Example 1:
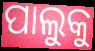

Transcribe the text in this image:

ପାଲୁକୁ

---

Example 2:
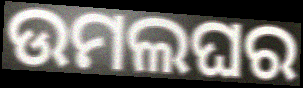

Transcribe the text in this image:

ଉମଲଘର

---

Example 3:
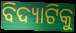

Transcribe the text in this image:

ବିଦ୍ୟାଟିକୁ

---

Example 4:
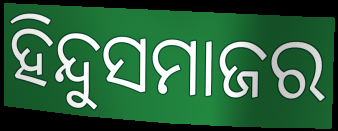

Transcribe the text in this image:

ହିନ୍ଦୁସମାଜର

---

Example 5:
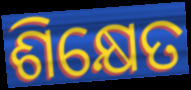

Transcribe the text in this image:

ଶିକ୍ଷେତ